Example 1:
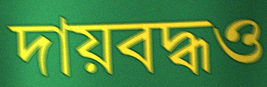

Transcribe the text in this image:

দায়বদ্ধও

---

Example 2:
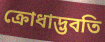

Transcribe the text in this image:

ক্রোধাদ্ভবতি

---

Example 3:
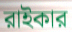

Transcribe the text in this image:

রাইকার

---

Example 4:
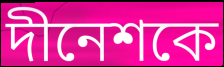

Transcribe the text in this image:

দীনেশকে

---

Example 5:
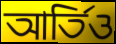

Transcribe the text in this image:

আর্তিও